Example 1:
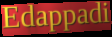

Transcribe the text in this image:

Edappadi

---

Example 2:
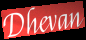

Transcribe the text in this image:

Dhevan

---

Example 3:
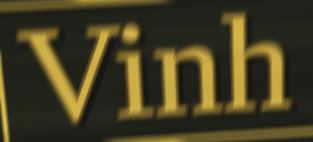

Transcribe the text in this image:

Vinh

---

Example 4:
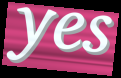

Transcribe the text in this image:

yes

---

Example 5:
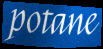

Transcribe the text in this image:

potane